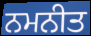
ਨਮਨੀਤ